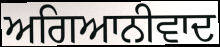
ਅਗਿਆਨੀਵਾਦ